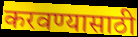
करवण्यासाठी